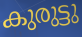
കുരുട്ടു